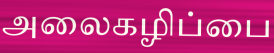
அலைகழிப்பை